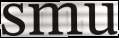
smu